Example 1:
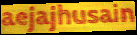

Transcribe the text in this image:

aejajhusain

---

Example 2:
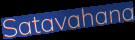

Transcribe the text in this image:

Satavahana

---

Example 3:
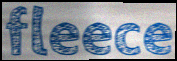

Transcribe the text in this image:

fleece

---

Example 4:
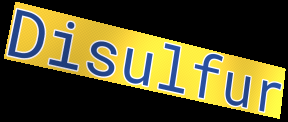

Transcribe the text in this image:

Disulfur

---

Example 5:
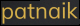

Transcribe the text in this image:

patnaik